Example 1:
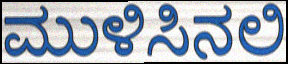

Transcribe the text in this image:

ಮುಳಿಸಿನಲಿ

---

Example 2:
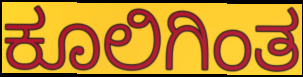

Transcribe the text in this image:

ಕೂಲಿಗಿಂತ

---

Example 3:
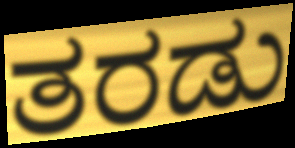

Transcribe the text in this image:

ತರಡು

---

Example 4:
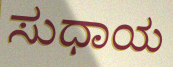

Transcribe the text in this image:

ಸುಧಾಯ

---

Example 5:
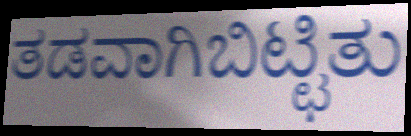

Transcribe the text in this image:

ತಡವಾಗಿಬಿಟ್ಟಿತು